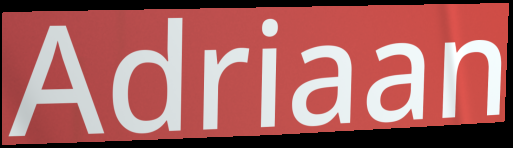
Adriaan